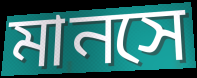
মানসে